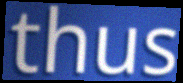
thus